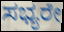
ಸಭ್ಯರೇ